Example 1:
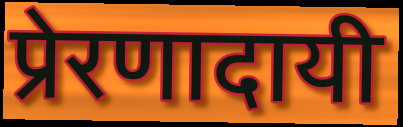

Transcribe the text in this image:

प्रेरणादायी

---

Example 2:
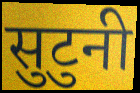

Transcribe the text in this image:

सुटुनी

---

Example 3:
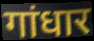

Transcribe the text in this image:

गांधार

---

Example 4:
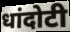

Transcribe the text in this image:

धांदोटी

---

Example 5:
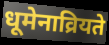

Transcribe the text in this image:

धूमेनाव्रियते